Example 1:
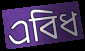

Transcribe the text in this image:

এবিধ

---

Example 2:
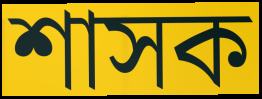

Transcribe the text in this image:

শাসক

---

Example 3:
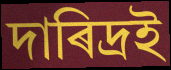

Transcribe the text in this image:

দাৰিদ্ৰই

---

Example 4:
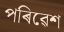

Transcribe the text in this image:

পৰিৱেশ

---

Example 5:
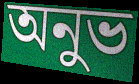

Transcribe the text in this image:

অনুভ